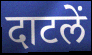
दाटलें